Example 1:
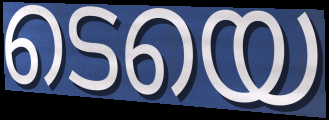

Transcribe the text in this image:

ടെയെ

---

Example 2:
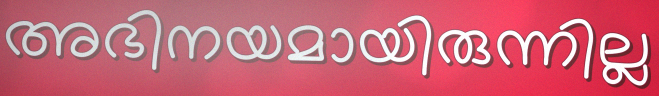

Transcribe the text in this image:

അഭിനയമായിരുന്നില്ല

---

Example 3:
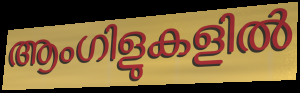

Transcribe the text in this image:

ആംഗിളുകളിൽ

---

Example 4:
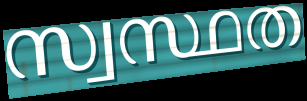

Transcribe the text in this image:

സ്വസ്ഥത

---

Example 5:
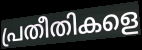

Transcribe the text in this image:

പ്രതീതികളെ